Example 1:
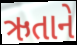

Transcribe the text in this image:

ઋતાને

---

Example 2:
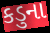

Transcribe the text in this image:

કડુના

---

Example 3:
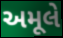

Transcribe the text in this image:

અમૂલે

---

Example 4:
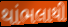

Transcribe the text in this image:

થાંભલાથી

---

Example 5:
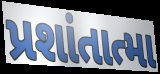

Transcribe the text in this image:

પ્રશાંતાત્મા